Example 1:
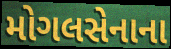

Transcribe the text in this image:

મોગલસેનાના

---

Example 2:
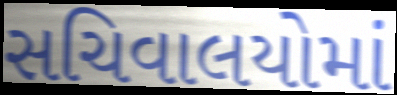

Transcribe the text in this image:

સચિવાલયોમાં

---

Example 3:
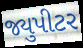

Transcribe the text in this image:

જ્યુપીટર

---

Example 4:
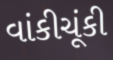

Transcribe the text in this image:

વાંકીચૂંકી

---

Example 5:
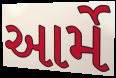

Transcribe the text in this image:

આર્મે